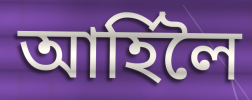
আৰ্হিলৈ